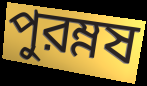
পুরম্নষ